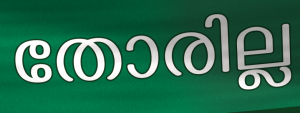
തോരില്ല